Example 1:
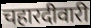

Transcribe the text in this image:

चहारदीवारी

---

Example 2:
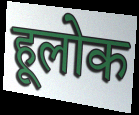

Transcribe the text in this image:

हूलोक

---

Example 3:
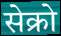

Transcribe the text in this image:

सेक्रो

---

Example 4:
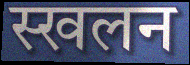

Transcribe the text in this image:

स्‍खलन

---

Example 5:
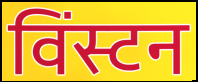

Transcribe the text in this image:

विंस्टन